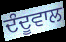
ਦੰਦੂਵਾਲ